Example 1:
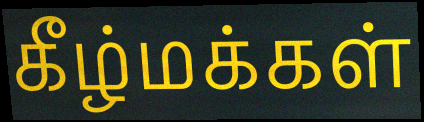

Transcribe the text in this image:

கீழ்மக்கள்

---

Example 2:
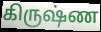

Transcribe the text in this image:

கிருஷ்ண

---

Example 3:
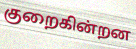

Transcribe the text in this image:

குறைகின்றன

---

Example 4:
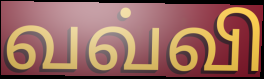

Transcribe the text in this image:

வவ்வி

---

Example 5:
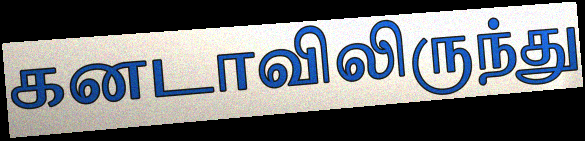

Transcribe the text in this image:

கனடாவிலிருந்து